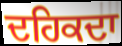
ਦਹਿਕਦਾ